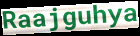
Raajguhya